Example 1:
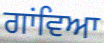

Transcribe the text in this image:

ਗਾਂਵਿਆ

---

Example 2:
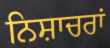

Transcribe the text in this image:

ਨਿਸ਼ਾਚਰਾਂ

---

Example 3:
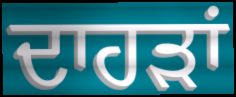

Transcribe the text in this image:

ਦਾਹੜਾਂ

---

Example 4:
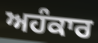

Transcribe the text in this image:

ਅਹੰਕਾਰ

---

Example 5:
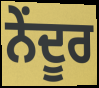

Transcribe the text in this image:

ਨੇਂਦੂਰ